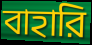
বাহারি